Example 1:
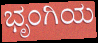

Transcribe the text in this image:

ಭೃಂಗಿಯ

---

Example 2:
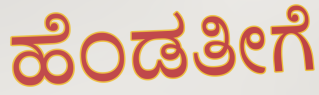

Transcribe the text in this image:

ಹೆಂಡತೀಗೆ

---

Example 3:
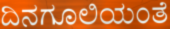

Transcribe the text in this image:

ದಿನಗೂಲಿಯಂತೆ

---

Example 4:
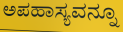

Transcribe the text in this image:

ಅಪಹಾಸ್ಯವನ್ನೂ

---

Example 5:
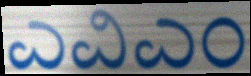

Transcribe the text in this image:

ಎವಿಎಂ